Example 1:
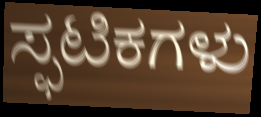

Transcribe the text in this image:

ಸ್ಫಟಿಕಗಳು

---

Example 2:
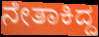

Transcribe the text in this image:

ನೇತಾಕಿದ್ದ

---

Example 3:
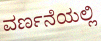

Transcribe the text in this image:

ವರ್ಣನೆಯಲ್ಲಿ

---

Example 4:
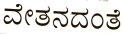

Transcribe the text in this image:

ವೇತನದಂತೆ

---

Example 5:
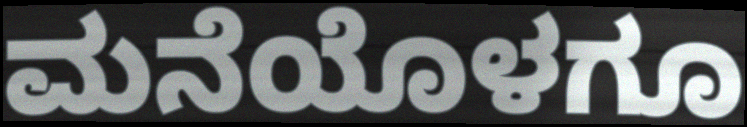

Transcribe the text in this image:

ಮನೆಯೊಳಗೂ